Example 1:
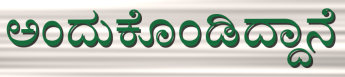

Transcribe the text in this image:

ಅಂದುಕೊಂಡಿದ್ದಾನೆ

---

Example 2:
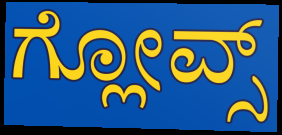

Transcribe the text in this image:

ಗ್ಲೋವ್ಸ್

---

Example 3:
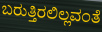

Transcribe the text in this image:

ಬರುತ್ತಿರಲಿಲ್ಲವಂತೆ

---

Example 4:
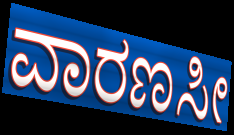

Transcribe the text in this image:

ವಾರಣಸೀ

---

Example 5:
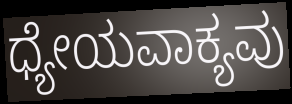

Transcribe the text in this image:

ಧ್ಯೇಯವಾಕ್ಯವು